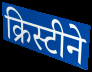
क्रिस्टीने